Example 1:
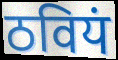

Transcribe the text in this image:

ठवियं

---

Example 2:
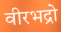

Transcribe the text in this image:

वीरभद्रो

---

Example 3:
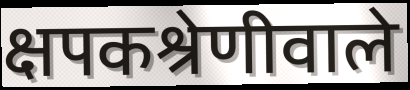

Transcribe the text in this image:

क्षपकश्रेणीवाले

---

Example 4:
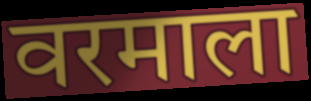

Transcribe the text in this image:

वरमाला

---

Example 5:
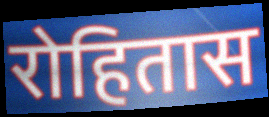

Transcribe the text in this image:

रोहितास